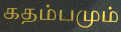
கதம்பமும்